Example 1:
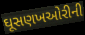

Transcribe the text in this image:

ઘૂસણખઓરીની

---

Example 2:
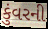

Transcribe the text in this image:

કુંવરની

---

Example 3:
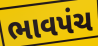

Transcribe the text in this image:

ભાવપંચ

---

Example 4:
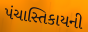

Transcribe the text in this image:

પંચાસ્તિકાયની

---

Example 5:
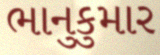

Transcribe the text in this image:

ભાનુકુમાર